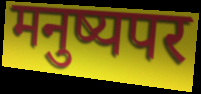
मनुष्यपर